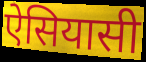
ऐसियासी